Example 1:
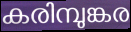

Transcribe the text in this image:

കരിമ്പുങ്കര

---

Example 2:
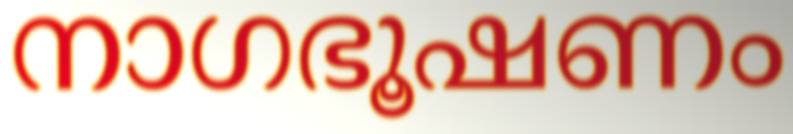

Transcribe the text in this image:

നാഗഭൂഷണം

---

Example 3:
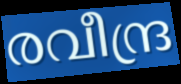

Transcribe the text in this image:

രവീന്ദ്ര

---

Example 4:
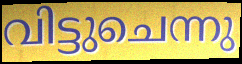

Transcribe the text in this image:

വിട്ടുചെന്നു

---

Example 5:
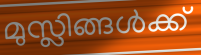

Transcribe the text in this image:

മുസ്ലിങ്ങൾക്ക്